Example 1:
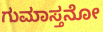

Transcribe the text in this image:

ಗುಮಾಸ್ತನೋ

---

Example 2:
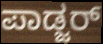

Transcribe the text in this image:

ಪಾಡ್ಜರ್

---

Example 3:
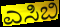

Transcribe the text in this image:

ಎಸಿಬಿ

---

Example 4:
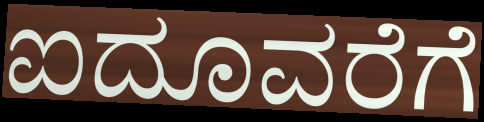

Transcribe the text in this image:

ಐದೂವರೆಗೆ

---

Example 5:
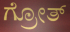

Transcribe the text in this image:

ಗ್ರೋತ್